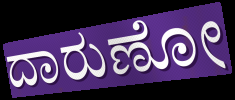
ದಾರುಣೋ